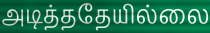
அடித்ததேயில்லை